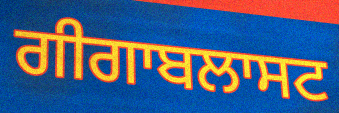
ਗੀਗਾਬਲਾਸਟ